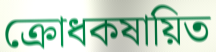
ক্রোধকষায়িত